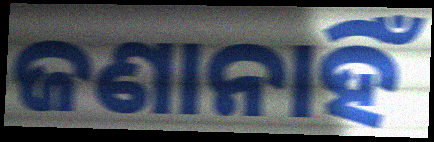
ଜଣାନାହିଁ